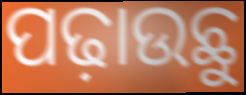
ପଢ଼ାଉଛୁ